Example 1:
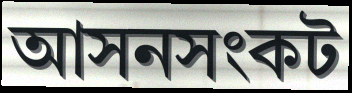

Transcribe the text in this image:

আসনসংকট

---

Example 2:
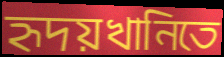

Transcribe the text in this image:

হৃদয়খানিতে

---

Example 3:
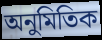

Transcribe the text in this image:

অনুমিতিক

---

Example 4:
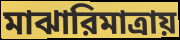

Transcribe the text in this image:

মাঝারিমাত্রায়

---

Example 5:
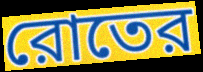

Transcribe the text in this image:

রোতের